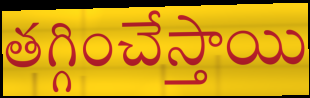
తగ్గించేస్తాయి